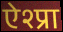
ऐश्प्रा